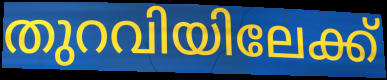
തുറവിയിലേക്ക്